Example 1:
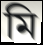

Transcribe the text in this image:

মি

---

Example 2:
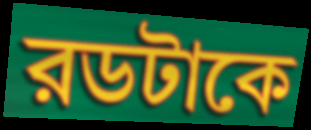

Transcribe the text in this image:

রডটাকে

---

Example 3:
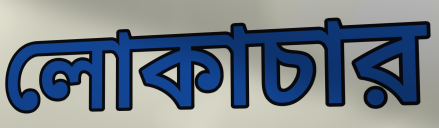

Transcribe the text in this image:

লোকাচার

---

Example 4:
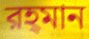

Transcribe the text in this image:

রহ্‌মান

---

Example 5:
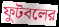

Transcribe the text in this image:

ফুটবলের